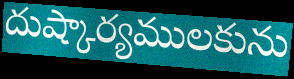
దుష్కార్యములకును